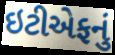
ઇટીએફનું